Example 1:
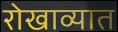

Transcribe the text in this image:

रोखाव्यात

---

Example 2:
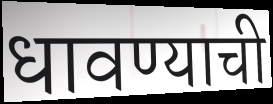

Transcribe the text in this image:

धावण्याची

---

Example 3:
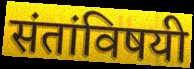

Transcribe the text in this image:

संतांविषयी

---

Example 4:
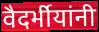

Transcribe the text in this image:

वैदर्भीयांनी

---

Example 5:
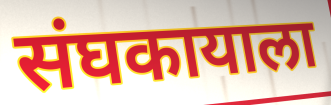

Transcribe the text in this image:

संघकायाला